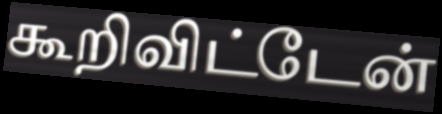
கூறிவிட்டேன்